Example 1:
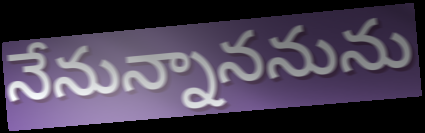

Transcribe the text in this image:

నేనున్నాననును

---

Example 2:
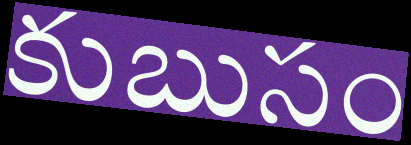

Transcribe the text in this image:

కుబుసం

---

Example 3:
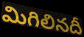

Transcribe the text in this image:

మిగిలినదీ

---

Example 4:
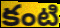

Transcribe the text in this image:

కంటి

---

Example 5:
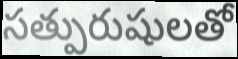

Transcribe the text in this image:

సత్పురుషులతో